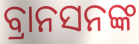
ବ୍ରାନସନଙ୍କ